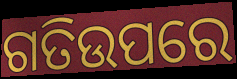
ଗତିଉପରେ